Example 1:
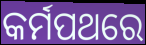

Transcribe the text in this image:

କର୍ମପଥରେ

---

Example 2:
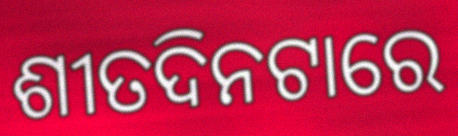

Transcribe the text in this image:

ଶୀତଦିନଟାରେ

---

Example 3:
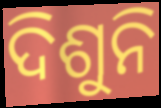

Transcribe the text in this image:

ଦିଶୁନି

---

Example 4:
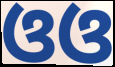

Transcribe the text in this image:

ଓଓ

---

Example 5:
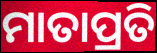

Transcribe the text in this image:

ମାତାପ୍ରତି